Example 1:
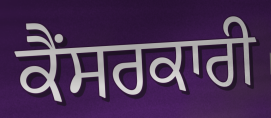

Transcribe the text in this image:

ਕੈਂਸਰਕਾਰੀ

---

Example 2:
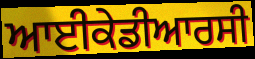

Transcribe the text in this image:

ਆਈਕੇਡੀਆਰਸੀ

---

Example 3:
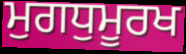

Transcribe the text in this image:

ਮੁਗਧੁਮੂਰਖ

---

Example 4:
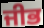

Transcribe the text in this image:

ਜੀਭ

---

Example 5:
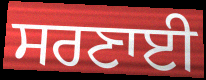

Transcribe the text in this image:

ਸਰਣਾਈ